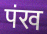
पंख